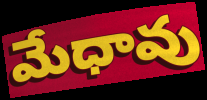
మేధావు